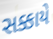
સક્કાયે